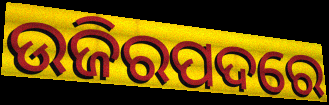
ଉଜିରପଦରେ